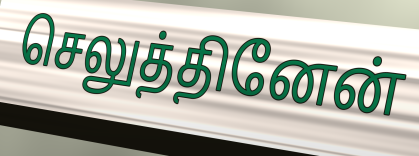
செலுத்தினேன்